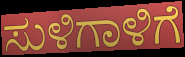
ಸುಳಿಗಾಳಿಗೆ